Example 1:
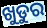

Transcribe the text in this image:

ଖୁଡୁର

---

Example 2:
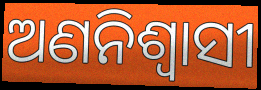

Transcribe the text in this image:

ଅଣନିଶ୍ୱାସୀ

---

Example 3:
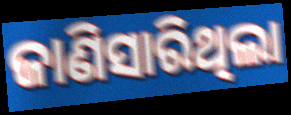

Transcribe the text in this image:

ଜାଣିସାରିଥିଲା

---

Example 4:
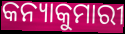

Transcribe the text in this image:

କନ୍ୟାକୁମାରୀ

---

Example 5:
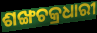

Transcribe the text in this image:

ଶଙ୍ଖଚକ୍ରଧାରୀ